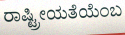
ರಾಷ್ಟ್ರೀಯತೆಯೆಂಬ